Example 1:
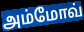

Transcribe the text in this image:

அம்மோவ்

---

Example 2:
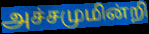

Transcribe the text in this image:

அச்சமுமின்றி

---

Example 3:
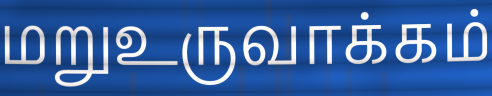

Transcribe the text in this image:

மறுஉருவாக்கம்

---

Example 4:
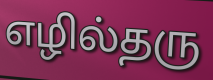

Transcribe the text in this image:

எழில்தரு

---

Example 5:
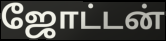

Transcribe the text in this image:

ஜோட்டன்